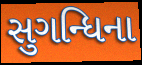
સુગન્ધિના